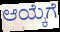
ಆಯ್ಕೆಗೆ